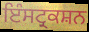
ਇੰਸਟ੍ਰਕਸ਼ਨ